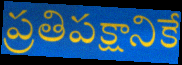
ప్రతిపక్షానికే